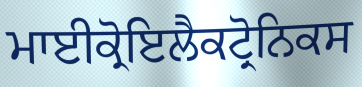
ਮਾਈਕ੍ਰੋਇਲੈਕਟ੍ਰੋਨਿਕਸ